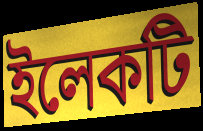
ইলেকটি